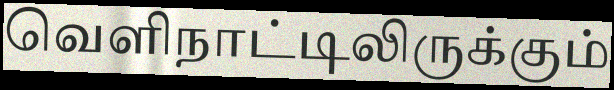
வெளிநாட்டிலிருக்கும்